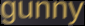
gunny